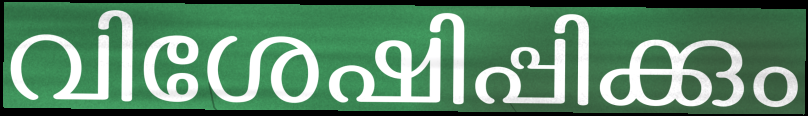
വിശേഷിപ്പിക്കും